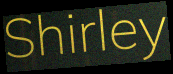
Shirley